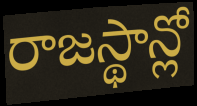
రాజస్థాన్లో